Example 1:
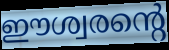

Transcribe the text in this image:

ഈശ്വരന്റെ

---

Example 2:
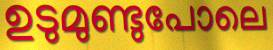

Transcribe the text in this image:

ഉടുമുണ്ടുപോലെ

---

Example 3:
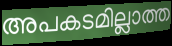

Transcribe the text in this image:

അപകടമില്ലാത്ത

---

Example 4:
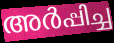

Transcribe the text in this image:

അർപ്പിച്ച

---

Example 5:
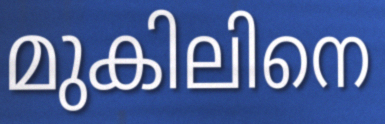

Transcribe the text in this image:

മുകിലിനെ